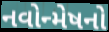
નવોન્મેષનો